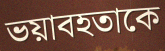
ভয়াবহতাকে